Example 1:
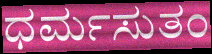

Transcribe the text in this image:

ಧರ್ಮಸುತಂ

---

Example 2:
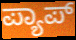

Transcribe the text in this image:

ಪ್ಯಾಪ್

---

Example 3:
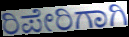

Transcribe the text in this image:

ರಿಪೇರಿಗಾಗಿ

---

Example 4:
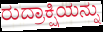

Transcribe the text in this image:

ರುದ್ರಾಕ್ಷಿಯನ್ನು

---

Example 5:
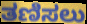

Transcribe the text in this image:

ತಣಿಸಲು